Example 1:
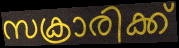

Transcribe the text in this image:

സക്രാരിക്ക്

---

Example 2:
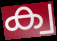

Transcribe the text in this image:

ക്വ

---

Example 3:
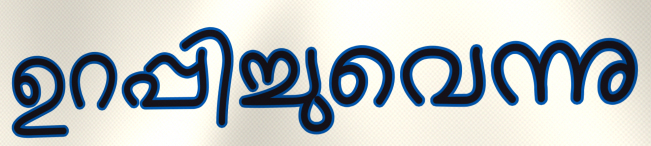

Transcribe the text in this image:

ഉറപ്പിച്ചുവെന്നു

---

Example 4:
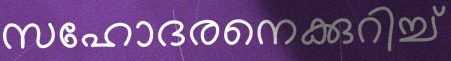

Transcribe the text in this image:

സഹോദരനെക്കുറിച്ച്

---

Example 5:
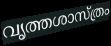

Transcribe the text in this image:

വൃത്തശാസ്ത്രം